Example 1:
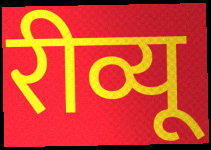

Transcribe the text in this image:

रीव्यू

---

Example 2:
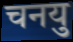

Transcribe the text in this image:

चनयु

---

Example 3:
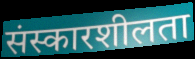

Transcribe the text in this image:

संस्कारशीलता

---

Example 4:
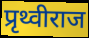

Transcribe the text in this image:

प्रृथ्वीराज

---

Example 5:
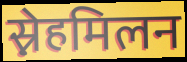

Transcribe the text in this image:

स्नेहमिलन